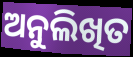
ଅନୁଲିଖିତ